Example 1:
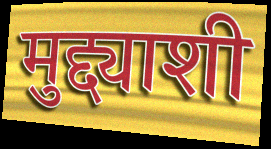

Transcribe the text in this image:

मुद्द्याशी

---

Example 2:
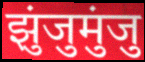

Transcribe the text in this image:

झुंजुमुंजु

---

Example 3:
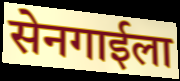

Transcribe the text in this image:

सेनगाईला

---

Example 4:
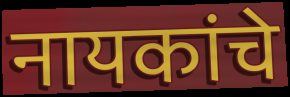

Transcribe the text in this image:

नायकांचे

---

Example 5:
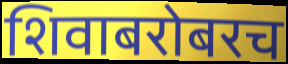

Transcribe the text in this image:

शिवाबरोबरच